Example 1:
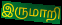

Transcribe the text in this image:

இருமாறி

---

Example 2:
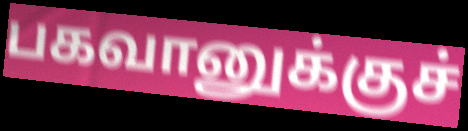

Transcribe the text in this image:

பகவானுக்குச்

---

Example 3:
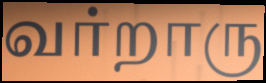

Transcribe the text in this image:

வர்றாரு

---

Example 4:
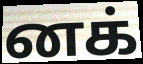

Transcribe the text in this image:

னக்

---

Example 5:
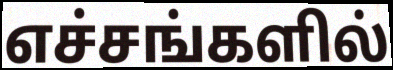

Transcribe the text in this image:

எச்சங்களில்